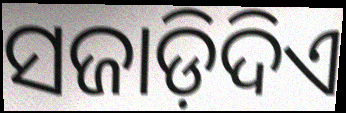
ସଜାଡ଼ିଦିଏ